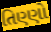
તિણ્ણો